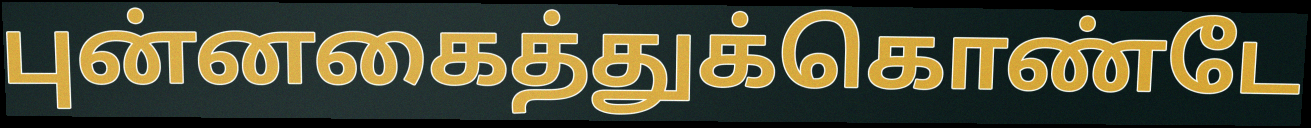
புன்னகைத்துக்கொண்டே